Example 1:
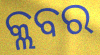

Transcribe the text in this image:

କ୍ଲବର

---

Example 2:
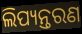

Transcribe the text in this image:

ଲିପ୍ୟନ୍ତରଣ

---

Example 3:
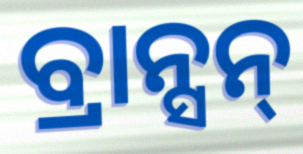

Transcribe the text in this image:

ବ୍ରାନ୍ସନ୍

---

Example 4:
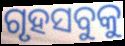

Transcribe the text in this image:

ଗୃହସବୁକୁ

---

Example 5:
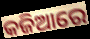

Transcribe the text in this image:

କଜିଆରେ